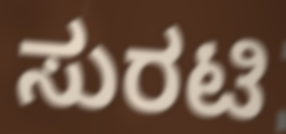
ಸುರಟಿ